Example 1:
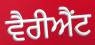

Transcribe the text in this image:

ਵੈਰੀਐਂਟ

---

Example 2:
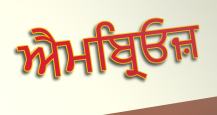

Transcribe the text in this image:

ਐਮਬ੍ਰਿਓਜ਼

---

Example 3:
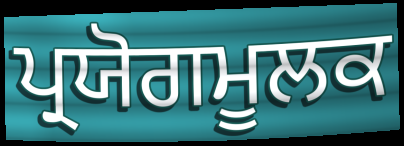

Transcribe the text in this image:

ਪ੍ਰਯੋਗਮੂਲਕ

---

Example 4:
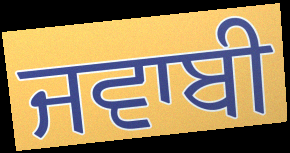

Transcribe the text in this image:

ਜਵਾਬੀ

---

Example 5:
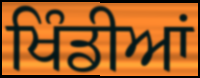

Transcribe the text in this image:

ਖਿੰਡੀਆਂ